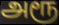
அரூ